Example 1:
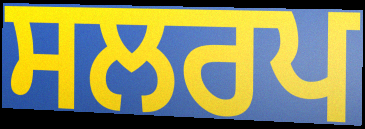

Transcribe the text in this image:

ਸਲਰਪ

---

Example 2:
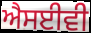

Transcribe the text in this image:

ਐਸਈਵੀ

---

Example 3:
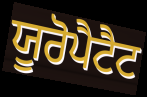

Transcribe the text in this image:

ਯੂਰੋਪੈਟੈਟ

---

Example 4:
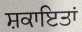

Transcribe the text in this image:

ਸ਼ਕਾਇਤਾਂ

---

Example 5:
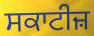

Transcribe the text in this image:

ਸਕਾਟੀਜ਼